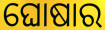
ଘୋଷାର